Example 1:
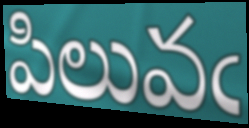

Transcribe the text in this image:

పిలువఁ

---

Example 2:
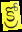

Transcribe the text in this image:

క్రో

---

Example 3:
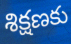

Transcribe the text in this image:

శిక్షణకు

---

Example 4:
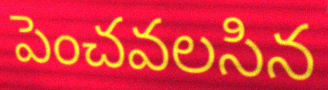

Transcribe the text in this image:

పెంచవలసిన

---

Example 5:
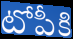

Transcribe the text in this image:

టోపీకి